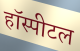
हॉस्पीटल